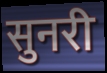
सुनरी